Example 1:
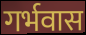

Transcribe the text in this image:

गर्भवास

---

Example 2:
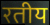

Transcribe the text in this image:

रतीय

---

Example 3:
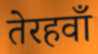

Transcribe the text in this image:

तेरहवाँ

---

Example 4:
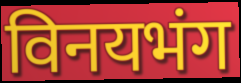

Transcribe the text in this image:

विनयभंग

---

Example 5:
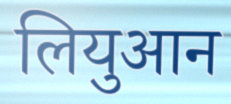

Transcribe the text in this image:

लियुआन